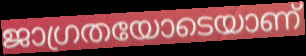
ജാഗ്രതയോടെയാണ്